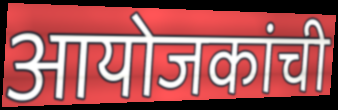
आयोजकांची